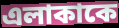
এলাকাকে